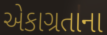
એકાગ્રતાના